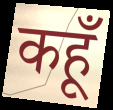
कहूँ